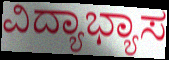
ವಿದ್ಯಾಭ್ಯಾಸ